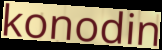
konodin